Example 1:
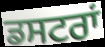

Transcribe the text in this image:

ਡਸਟਰਾਂ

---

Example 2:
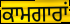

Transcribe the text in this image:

ਕਾਮਗਾਰਾਂ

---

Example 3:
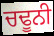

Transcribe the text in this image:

ਚਢੂਨੀ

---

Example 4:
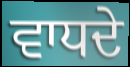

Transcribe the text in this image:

ਵਾਧਦੇ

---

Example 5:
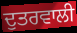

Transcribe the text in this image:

ਦੁਤਰਵਾਲੀ